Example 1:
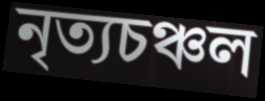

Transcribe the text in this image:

নৃত্যচঞ্চল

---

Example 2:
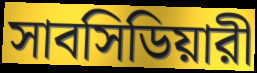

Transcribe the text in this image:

সাবসিডিয়ারী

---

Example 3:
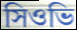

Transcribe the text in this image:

সিওভি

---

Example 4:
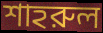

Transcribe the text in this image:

শাহরুল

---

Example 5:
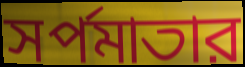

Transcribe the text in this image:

সর্পমাতার